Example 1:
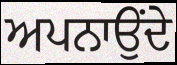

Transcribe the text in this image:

ਅਪਨਾਉਂਦੇ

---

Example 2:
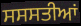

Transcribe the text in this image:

ਸਸਸਤੀਆਂ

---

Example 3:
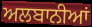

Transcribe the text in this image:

ਅਲਬਾਨੀਆਂ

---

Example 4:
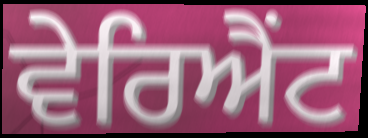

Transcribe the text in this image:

ਵੇਰਿਐਂਟ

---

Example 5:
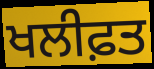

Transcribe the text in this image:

ਖਲੀਫ਼ਤ